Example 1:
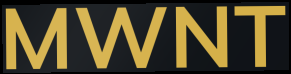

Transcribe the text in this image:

MWNT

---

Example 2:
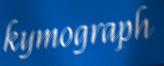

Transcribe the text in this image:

kymograph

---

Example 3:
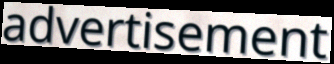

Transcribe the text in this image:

advertisement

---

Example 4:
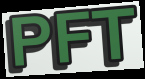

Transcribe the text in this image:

PFT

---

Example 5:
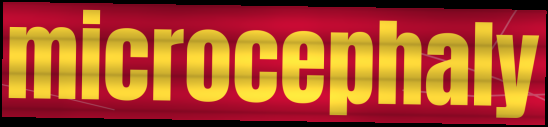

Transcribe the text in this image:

microcephaly